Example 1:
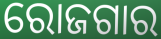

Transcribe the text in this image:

ରୋଜଗାର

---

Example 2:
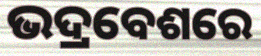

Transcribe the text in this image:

ଭଦ୍ରବେଶରେ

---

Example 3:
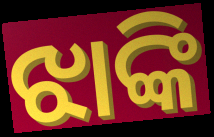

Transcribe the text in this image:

ଝାଙ୍କି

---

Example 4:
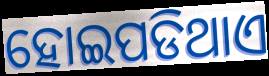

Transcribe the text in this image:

ହୋଇପଡିଥାଏ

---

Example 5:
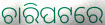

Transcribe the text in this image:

ଚାରିପଟରେ